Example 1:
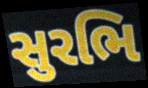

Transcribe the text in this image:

સુરભિ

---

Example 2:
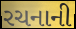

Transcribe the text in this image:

રચનાની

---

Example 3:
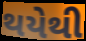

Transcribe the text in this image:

થયેથી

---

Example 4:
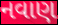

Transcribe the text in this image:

નવાણ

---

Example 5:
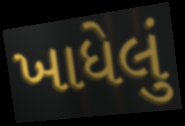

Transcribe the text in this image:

ખાધેલું